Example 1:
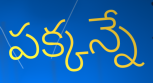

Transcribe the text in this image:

పక్కన్నే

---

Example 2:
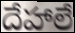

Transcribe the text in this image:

దేహాలే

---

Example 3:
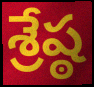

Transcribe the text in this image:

శ్రేష్ఠ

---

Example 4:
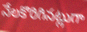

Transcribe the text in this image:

నేలకొరిగినట్లుగా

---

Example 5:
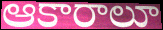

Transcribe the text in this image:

ఆకారాలూ